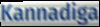
Kannadiga